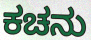
ಕಚನು